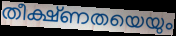
തീക്ഷ്ണതയെയും